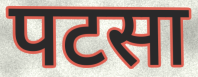
पटसा